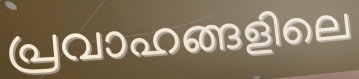
പ്രവാഹങ്ങളിലെ